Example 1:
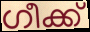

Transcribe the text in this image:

ഗീക്ക്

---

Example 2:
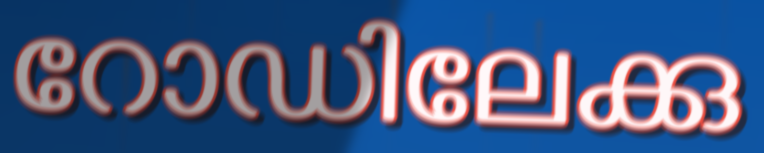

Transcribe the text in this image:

റോഡിലേക്കു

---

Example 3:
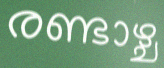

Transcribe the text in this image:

രണ്ടാഴ്ച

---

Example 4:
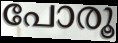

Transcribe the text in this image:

പോരൂ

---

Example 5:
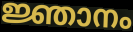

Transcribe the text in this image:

ജ്ഞാനം